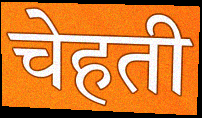
चेहती